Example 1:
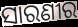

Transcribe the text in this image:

ସାରଣୀର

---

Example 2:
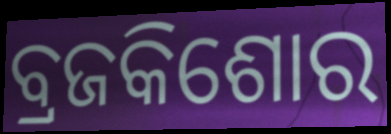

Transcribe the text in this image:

ବ୍ରଜକିଶୋର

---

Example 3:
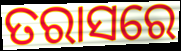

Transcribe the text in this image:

ତରାସରେ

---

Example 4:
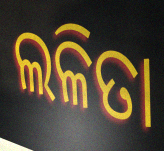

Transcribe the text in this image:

ଲଳିତା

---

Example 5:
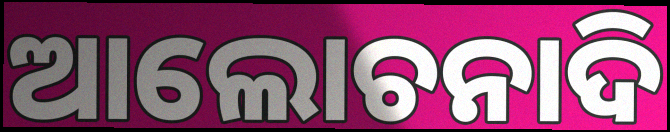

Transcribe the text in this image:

ଆଲୋଚନାଦି